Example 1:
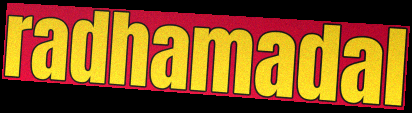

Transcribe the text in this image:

radhamadal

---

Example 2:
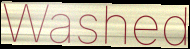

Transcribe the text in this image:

Washed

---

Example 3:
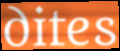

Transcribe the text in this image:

dites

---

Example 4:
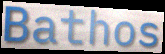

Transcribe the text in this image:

Bathos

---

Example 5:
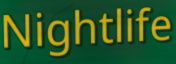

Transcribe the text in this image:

Nightlife